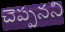
చెప్పనని